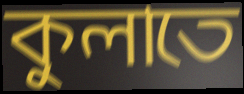
কুলাতে